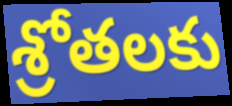
శ్రోతలకు